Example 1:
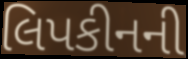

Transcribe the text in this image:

લિપકીનની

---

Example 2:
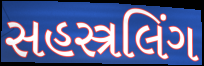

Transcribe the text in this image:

સહસ્ત્રલિંગ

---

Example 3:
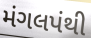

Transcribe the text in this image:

મંગલપંથી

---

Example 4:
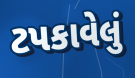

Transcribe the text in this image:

ટપકાવેલું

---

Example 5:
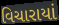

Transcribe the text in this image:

વિચારાયાં